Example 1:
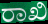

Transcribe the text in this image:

ರಾಖಿ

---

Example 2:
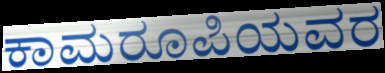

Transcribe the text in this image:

ಕಾಮರೂಪಿಯವರ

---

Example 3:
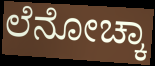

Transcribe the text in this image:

ಲೆನೋಚ್ಕಾ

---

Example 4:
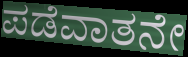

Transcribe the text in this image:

ಪಡೆವಾತನೇ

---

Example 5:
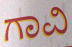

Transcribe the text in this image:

ಗಾವಿ